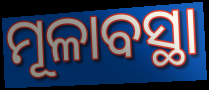
ମୂଳାବସ୍ଥା